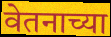
वेतनाच्या